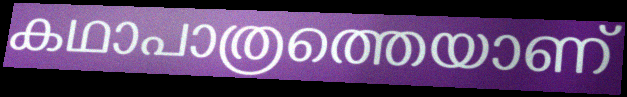
കഥാപാത്രത്തെയാണ്